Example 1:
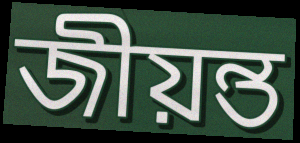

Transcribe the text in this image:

জীয়ন্ত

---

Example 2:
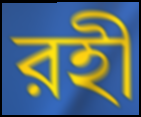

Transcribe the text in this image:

রহী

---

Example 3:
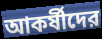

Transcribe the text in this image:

আকর্ষীদের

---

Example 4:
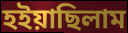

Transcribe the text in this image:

হইয়াছিলাম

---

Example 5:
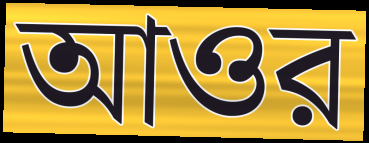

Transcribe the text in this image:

আওর